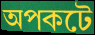
অপকটে